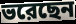
ভরেছেন